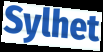
Sylhet